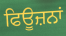
ਫਿਊਜ਼ਨਾਂ